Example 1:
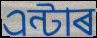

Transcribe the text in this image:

এন্টাৰ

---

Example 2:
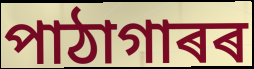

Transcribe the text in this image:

পাঠাগাৰৰ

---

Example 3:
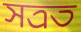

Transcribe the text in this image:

সত্ৰত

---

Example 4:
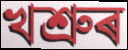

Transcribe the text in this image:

খশ্ৰুৰ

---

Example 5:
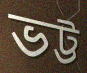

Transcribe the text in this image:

ভট্ট